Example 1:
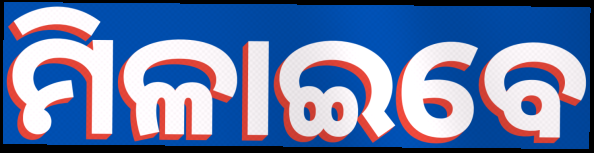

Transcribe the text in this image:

ମିଳାଇବେ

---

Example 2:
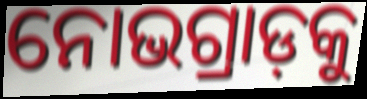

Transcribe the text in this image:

ନୋଭଗ୍ରାଡ଼କୁ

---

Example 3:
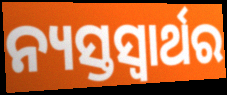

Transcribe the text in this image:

ନ୍ୟସ୍ତସ୍ଵାର୍ଥର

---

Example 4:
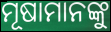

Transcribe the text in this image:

ମୂଷାମାନଙ୍କୁ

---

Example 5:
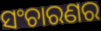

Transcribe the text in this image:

ସଂଚାରଣର